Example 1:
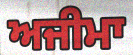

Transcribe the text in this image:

ਅਜੀਮਾ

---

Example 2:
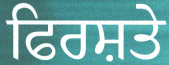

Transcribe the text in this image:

ਫਿਰਸ਼ਤੇ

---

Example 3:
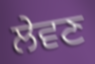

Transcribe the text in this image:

ਲੇਵਣ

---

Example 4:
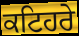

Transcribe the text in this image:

ਕਟਿਹਰੇ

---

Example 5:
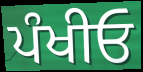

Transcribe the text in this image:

ਪੰਖੀਓ